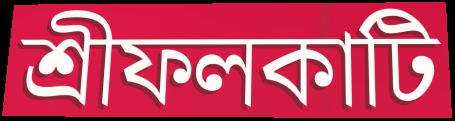
শ্রীফলকাটি